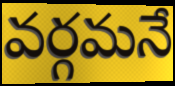
వర్గమనే